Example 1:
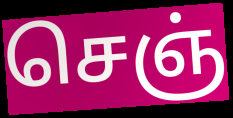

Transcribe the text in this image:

செஞ்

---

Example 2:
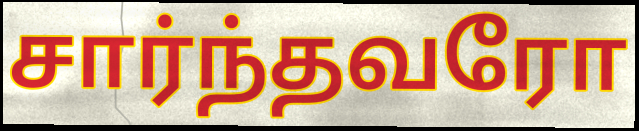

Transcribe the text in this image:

சார்ந்தவரோ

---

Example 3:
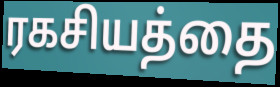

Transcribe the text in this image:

ரகசியத்தை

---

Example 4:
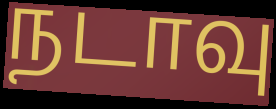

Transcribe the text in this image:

நடாவு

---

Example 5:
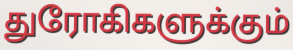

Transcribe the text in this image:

துரோகிகளுக்கும்